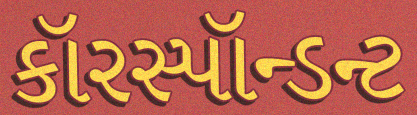
કૉરસ્પૉન્ડન્ટ